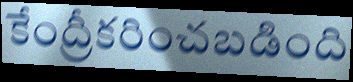
కేంద్రీకరించబడింది